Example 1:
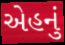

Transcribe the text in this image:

એહનું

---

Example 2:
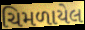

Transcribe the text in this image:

ચિમળાયેલ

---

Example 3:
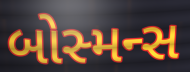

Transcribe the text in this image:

બોસ્મન્સ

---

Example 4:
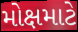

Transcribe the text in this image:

મોક્ષમાટે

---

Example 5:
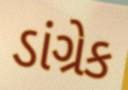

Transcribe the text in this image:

ડાંગ્રેક